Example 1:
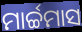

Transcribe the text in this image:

ମାର୍ଚ୍ଚମାସ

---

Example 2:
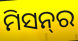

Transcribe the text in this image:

ମିସନ୍‍ର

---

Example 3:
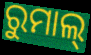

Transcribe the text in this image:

ରୁମାଲ୍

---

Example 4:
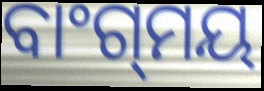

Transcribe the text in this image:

ବାଂଗ୍‌ମୟ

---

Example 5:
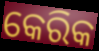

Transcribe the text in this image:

କେରିକ